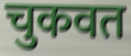
चुकवत